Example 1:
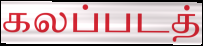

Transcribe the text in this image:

கலப்படத்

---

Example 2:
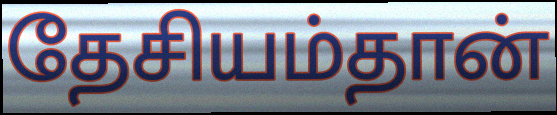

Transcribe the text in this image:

தேசியம்தான்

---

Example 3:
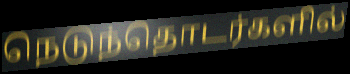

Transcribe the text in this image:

நெடுந்தொடர்களில்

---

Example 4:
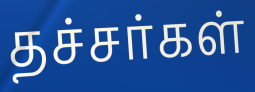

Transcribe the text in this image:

தச்சர்கள்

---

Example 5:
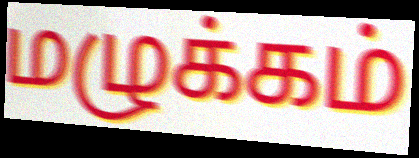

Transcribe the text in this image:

மழுக்கம்